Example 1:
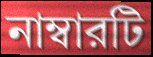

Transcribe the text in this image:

নাম্বারটি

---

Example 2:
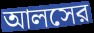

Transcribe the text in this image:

আলসের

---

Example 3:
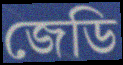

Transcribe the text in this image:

জেডি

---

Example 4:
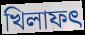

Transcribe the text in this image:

খিলাফৎ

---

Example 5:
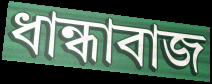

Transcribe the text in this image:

ধান্ধাবাজ